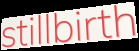
stillbirth